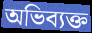
অভিব্যক্ত